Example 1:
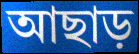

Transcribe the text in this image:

আছাড়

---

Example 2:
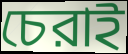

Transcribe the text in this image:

চেরাই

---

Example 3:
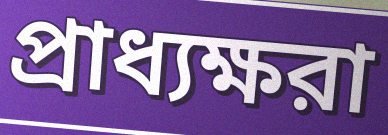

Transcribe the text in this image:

প্রাধ্যক্ষরা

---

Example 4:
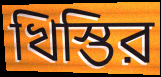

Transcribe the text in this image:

খিস্তির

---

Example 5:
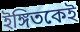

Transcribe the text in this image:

ইঙ্গিতকেই